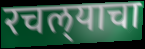
रचल्याचा